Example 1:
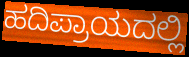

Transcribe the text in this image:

ಹದಿಪ್ರಾಯದಲ್ಲಿ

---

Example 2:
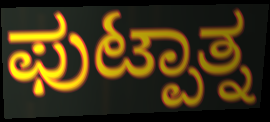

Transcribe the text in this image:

ಫುಟ್ಪಾತ್ನ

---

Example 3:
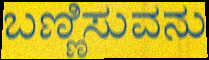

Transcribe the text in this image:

ಬಣ್ಣಿಸುವನು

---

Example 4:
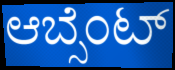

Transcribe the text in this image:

ಆಬ್ಸೆಂಟ್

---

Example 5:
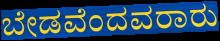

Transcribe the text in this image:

ಬೇಡವೆಂದವರಾರು